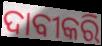
ଦାବୀକରି